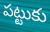
పట్టుకు